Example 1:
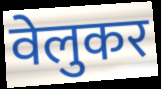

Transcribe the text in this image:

वेलुकर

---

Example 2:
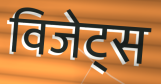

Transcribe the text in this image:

विजेट्स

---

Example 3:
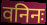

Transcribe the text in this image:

वनिनः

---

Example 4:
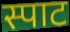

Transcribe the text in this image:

स्पाट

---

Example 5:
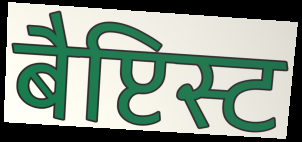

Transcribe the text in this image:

बैप्टिस्ट